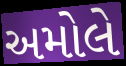
અમોલે